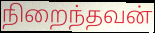
நிறைந்தவன்